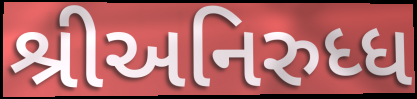
શ્રીઅનિરુધ્ધ